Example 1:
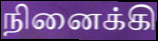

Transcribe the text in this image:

நினைக்கி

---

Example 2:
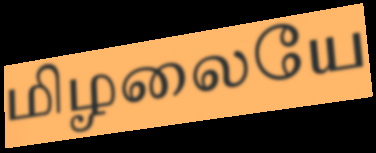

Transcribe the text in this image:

மிழலையே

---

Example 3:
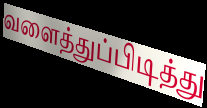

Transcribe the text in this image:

வளைத்துப்பிடித்து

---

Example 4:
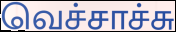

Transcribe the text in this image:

வெச்சாச்சு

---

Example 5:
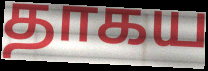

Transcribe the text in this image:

தாகய